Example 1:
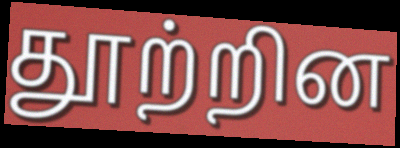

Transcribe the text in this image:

தூற்றின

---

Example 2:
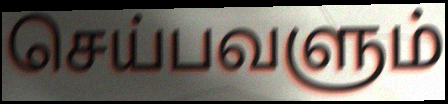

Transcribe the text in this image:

செய்பவளும்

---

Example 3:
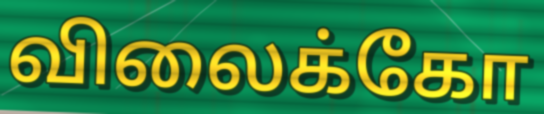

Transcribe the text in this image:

விலைக்கோ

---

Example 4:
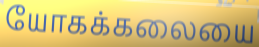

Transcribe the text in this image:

யோகக்கலையை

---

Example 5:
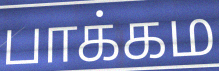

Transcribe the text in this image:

பாக்கம